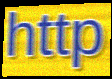
http